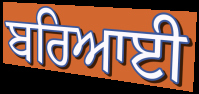
ਬਰਿਆਈ